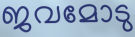
ജവമോടു